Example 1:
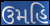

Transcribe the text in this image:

ઉમહિ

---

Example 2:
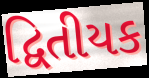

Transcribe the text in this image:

દ્વિતીયક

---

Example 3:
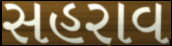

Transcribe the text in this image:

સહરાવ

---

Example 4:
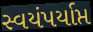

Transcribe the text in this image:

સ્વયંપર્યાપ્ત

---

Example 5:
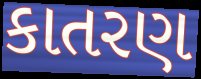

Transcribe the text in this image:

કાતરણ